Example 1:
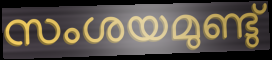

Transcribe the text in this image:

സംശയമുണ്ടു്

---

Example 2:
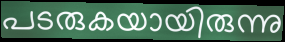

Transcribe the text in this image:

പടരുകയായിരുന്നു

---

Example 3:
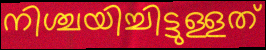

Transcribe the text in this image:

നിശ്ചയിച്ചിട്ടുള്ളത്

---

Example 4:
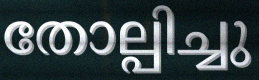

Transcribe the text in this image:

തോല്പിച്ചു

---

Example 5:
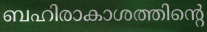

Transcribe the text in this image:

ബഹിരാകാശത്തിന്റെ